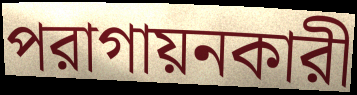
পরাগায়নকারী